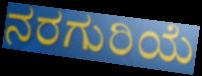
ನರಗುರಿಯೆ